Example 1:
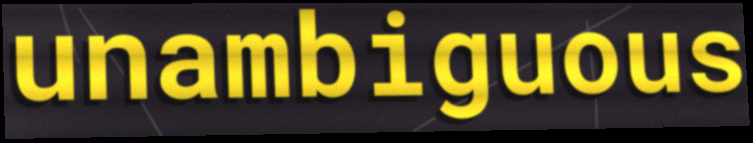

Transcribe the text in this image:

unambiguous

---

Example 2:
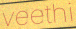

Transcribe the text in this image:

veethi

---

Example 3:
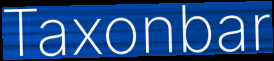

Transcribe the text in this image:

Taxonbar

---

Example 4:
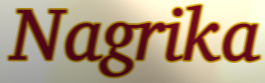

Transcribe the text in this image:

Nagrika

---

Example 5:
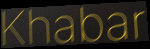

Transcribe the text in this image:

Khabar